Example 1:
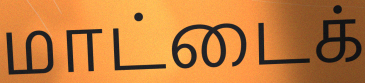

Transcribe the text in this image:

மாட்டைக்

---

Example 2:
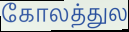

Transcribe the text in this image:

கோலத்துல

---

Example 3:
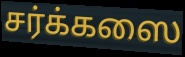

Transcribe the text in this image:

சர்க்கஸை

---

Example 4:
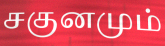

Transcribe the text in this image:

சகுனமும்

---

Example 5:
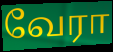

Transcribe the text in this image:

வேரா